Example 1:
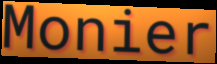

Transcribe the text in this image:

Monier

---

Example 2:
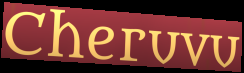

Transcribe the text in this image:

Cheruvu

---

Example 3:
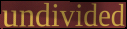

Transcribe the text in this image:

undivided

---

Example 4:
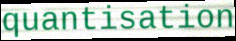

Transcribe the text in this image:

quantisation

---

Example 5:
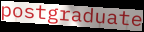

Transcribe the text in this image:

postgraduate